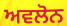
ਅਵਲੋਨ